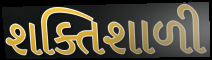
શક્તિશાળી